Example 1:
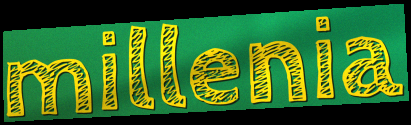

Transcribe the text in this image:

millenia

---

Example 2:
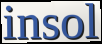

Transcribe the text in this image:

insol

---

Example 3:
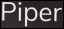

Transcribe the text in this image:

Piper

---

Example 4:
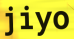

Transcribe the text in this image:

jiyo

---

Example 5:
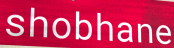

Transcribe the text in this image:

shobhane